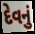
દેવનું